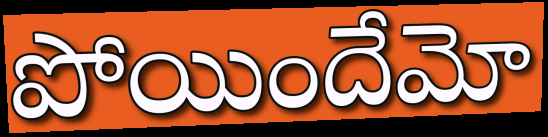
పోయిందేమో